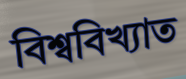
বিশ্ববিখ্যাত